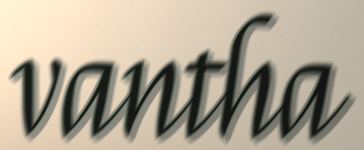
vantha